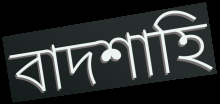
বাদশাহি